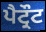
ਪੈਟ੍ਰੌਟ